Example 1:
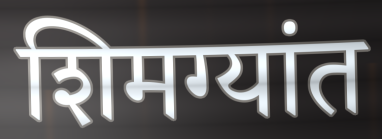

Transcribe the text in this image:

शिमग्यांत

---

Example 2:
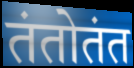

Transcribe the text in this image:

तंतोतंत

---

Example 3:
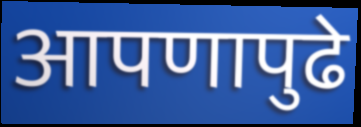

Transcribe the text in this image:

आपणापुढे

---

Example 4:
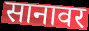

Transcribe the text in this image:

सानावर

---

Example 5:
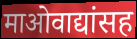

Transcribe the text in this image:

माओवाद्यांसह